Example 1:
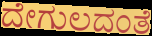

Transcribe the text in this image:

ದೇಗುಲದಂತೆ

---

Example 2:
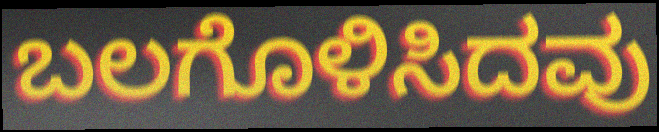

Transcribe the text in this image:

ಬಲಗೊಳಿಸಿದವು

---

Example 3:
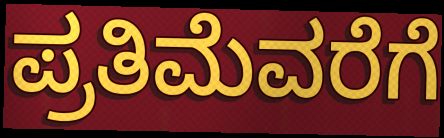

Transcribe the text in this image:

ಪ್ರತಿಮೆವರೆಗೆ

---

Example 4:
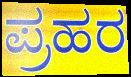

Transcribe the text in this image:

ಪ್ರಹರ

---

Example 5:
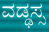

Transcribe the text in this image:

ವಡ್ಢಸ್ಸ